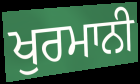
ਖੁਰਮਾਨੀ